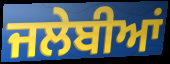
ਜਲੇਬੀਆਂ